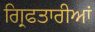
ਗ੍ਰਿਫਤਾਰੀਆਂ